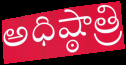
అధిష్ఠాత్రి